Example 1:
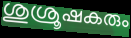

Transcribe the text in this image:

ശുശ്രൂഷകരും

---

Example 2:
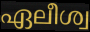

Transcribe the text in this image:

ഏലീശ്വ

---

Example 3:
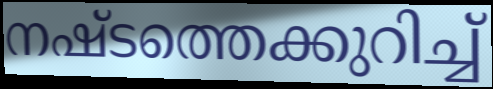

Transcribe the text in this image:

നഷ്ടത്തെക്കുറിച്ച്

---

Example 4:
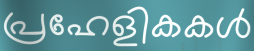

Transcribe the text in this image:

പ്രഹേളികകൾ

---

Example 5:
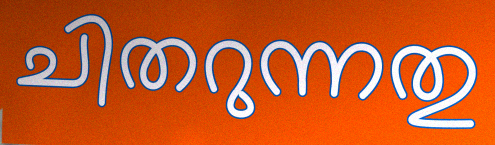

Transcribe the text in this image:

ചിതറുന്നതു